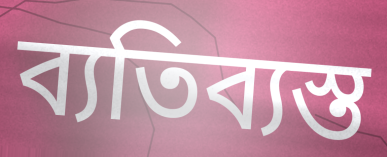
ব্যতিব্যস্ত